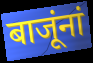
बाजूंनां